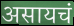
असायचं